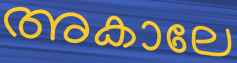
അകാലേ